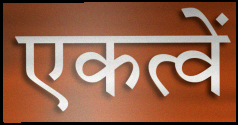
एकत्वें